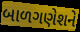
બાળગણેશને